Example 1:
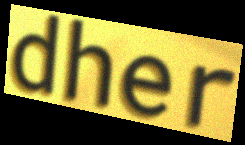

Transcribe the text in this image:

dher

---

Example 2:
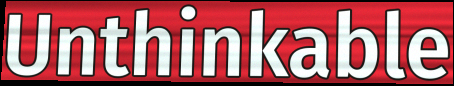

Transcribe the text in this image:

Unthinkable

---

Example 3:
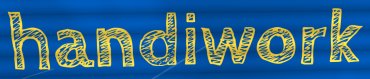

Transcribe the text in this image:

handiwork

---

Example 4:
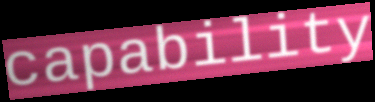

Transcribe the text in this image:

capability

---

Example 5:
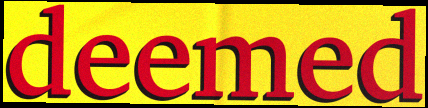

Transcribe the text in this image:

deemed